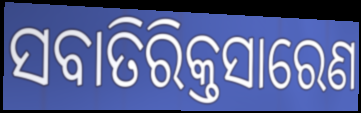
ସବାତିରିକ୍ତସାରେଣ